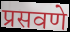
प्रसवणे